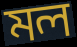
মল